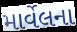
માર્વેલના